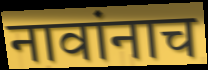
नावांनाच